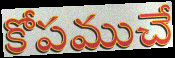
కోపముచే